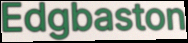
Edgbaston